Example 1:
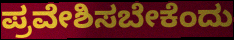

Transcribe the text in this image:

ಪ್ರವೇಶಿಸಬೇಕೆಂದು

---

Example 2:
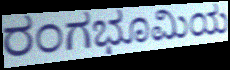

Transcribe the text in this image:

ರಂಗಭೂಮಿಯ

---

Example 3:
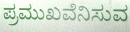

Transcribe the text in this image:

ಪ್ರಮುಖವೆನಿಸುವ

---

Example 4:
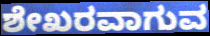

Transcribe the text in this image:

ಶೇಖರವಾಗುವ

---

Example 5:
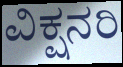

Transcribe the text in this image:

ವಿಕ್ಷನರಿ